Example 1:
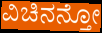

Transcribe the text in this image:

ವಿಚಿನನ್ತೋ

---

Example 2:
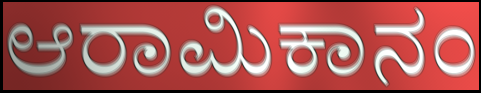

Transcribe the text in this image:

ಆರಾಮಿಕಾನಂ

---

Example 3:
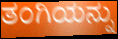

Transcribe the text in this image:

ತಂಗಿಯನ್ನು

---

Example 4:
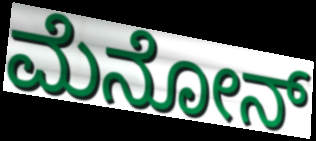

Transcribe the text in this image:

ಮೆನೋನ್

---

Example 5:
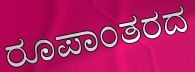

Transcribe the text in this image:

ರೂಪಾಂತರದ